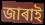
জাৰাই